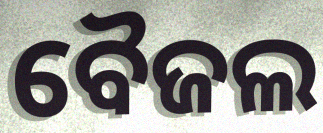
ବୈଜଲ